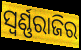
ସ୍ଵର୍ଣ୍ଣରାଜିର